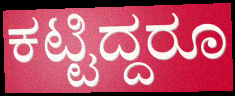
ಕಟ್ಟಿದ್ದರೂ